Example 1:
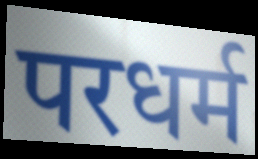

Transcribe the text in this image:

परधर्म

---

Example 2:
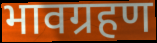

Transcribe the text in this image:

भावग्रहण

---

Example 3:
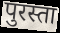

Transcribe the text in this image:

पुरस्ता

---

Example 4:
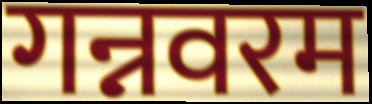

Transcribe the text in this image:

गन्नवरम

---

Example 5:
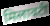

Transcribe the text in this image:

मिलावटी